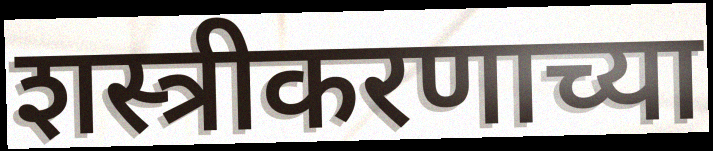
शस्त्रीकरणाच्या